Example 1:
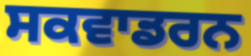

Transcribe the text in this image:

ਸਕਵਾਡਰਨ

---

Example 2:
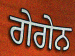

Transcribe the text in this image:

ਗੇਗੇਨ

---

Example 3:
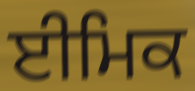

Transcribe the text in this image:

ਈਮਿਕ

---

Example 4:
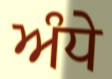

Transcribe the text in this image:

ਅੰਧੇ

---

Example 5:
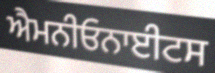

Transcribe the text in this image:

ਐਮਨੀਓਨਾਈਟਸ